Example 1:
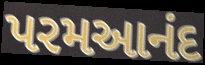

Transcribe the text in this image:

પરમઆનંદ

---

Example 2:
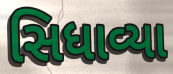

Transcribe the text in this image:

સિધાવ્યા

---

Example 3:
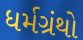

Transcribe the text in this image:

ધર્મગ્રંથો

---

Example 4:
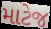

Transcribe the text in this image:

માટેજ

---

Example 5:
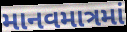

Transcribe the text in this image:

માનવમાત્રમાં